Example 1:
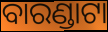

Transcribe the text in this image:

ବାରଣ୍ଡାଟା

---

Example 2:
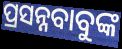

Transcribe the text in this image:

ପ୍ରସନ୍ନବାବୁଙ୍କ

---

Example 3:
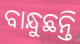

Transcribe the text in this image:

ବାନ୍ଧୁଛନ୍ତି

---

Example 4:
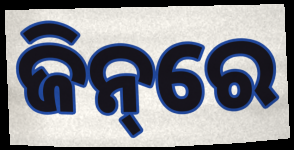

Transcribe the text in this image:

ଜିନ୍‌ରେ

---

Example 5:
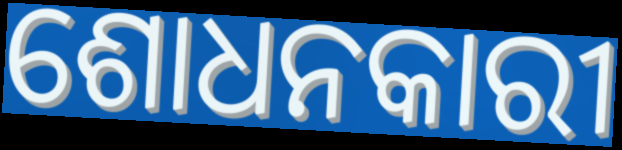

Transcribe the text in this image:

ଶୋଧନକାରୀ